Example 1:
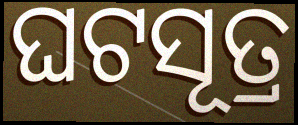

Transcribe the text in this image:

ଘଟସୂତ୍ର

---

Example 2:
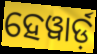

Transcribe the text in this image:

ହେୱାର୍ଡ଼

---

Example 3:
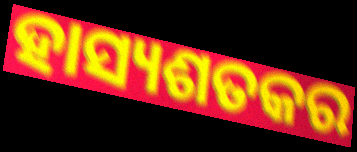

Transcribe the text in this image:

ହାସ୍ୟଶତକର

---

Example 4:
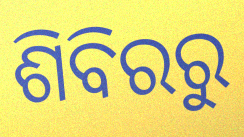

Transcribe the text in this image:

ଶିବିରରୁ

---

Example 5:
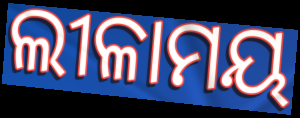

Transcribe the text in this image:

ଲୀଳାମୟ